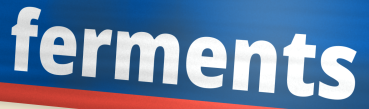
ferments